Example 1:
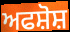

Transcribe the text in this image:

ਅਫਸ਼ੋਸ਼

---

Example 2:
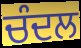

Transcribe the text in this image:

ਚੰਦਲ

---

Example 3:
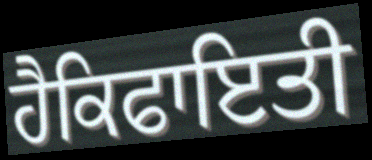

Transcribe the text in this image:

ਹੈਕਿਫਾਇਤੀ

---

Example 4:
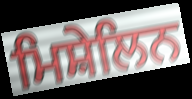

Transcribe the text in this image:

ਮਿਸ਼ੇਲਿਨ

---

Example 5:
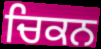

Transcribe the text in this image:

ਚਿਕਨ